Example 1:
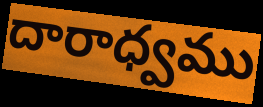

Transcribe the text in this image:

దారాధ్వము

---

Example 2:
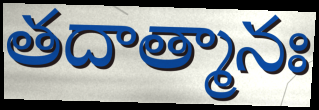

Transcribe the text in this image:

తదాత్మానః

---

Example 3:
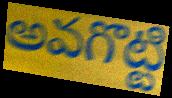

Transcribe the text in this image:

అవగొట్టి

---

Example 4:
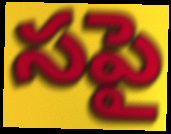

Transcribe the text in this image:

సపై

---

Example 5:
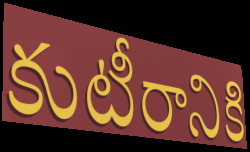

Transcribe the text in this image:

కుటీరానికి